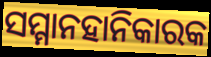
ସମ୍ମାନହାନିକାରକ